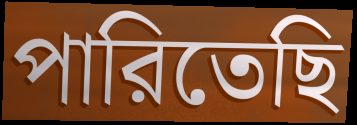
পারিতেছি